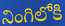
నింగిలోకి